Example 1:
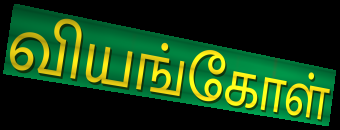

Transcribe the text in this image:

வியங்கோள்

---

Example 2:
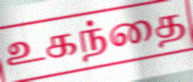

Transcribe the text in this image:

உகந்தை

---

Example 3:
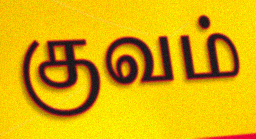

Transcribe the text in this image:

குவம்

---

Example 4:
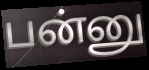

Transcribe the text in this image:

பன்னு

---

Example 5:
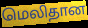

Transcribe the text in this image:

மெலிதான